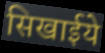
सिखाईये